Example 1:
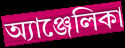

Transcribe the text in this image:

অ্যাঞ্জেলিকা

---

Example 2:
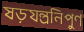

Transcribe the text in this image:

ষড়যন্ত্রনিপুণ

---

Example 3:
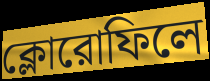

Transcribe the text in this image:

ক্লোরোফিলে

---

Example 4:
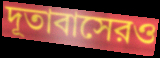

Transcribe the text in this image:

দূতাবাসেরও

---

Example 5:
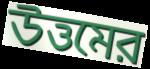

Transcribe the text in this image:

উত্তমের